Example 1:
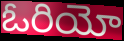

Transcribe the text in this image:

ఓరియో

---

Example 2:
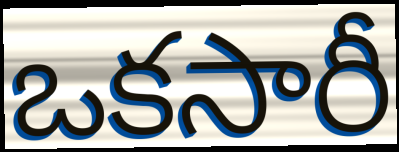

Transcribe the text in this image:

ఒకసారీ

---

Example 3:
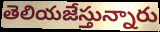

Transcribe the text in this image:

తెలియజేస్తున్నారు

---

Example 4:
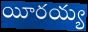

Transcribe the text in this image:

యీరయ్య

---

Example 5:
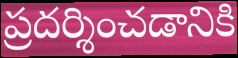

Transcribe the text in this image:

ప్రదర్శించడానికి